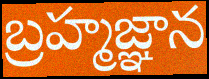
బ్రహ్మజ్ఞాన